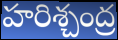
హరిశ్చంద్ర